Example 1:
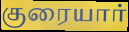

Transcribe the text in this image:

குரையார்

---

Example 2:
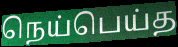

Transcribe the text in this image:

நெய்பெய்த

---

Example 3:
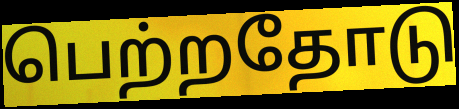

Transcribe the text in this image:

பெற்றதோடு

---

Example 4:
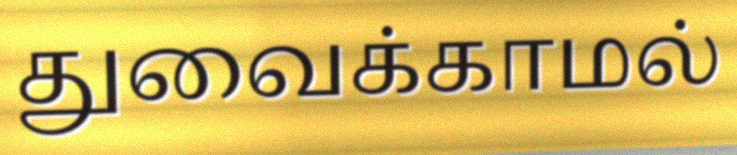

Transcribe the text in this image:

துவைக்காமல்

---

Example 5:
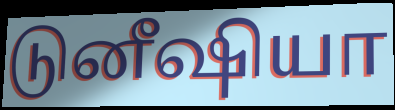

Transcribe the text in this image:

டுனீஷியா